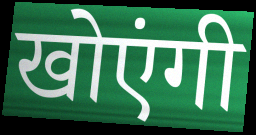
खोएंगी